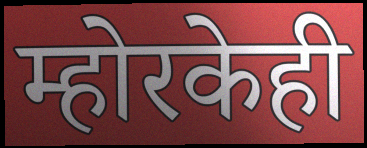
म्होरकेही